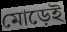
মোড়েই